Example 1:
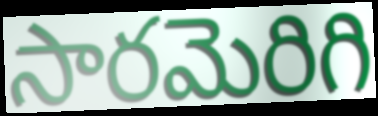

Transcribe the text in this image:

సారమెరిగి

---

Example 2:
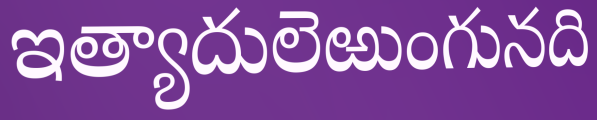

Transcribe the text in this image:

ఇత్యాదులెఱుంగునది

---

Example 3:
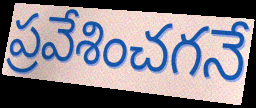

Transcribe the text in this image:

ప్రవేశించగనే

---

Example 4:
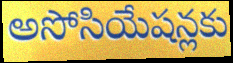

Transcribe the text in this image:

అసోసియేషన్లకు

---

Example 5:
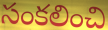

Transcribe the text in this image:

సంకలించి